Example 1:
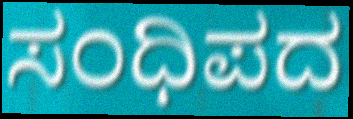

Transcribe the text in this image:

ಸಂಧಿಪದ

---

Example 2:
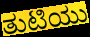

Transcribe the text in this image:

ತುಟಿಯು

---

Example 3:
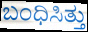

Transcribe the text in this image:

ಬಂಧಿಸಿತ್ತು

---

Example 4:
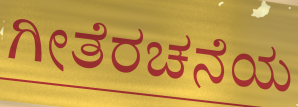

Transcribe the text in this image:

ಗೀತೆರಚನೆಯ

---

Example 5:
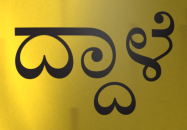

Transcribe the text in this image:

ದ್ದಾಳೆ